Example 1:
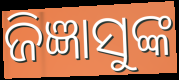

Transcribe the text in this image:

ଜିଜ୍ଞାସୁଙ୍କ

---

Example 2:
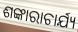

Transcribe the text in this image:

ଶଙ୍କାରାଚାର୍ଯ୍ୟ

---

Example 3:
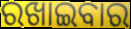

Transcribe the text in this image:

ରଖାଇବାର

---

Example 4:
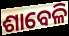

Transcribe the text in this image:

ଶାବେଳି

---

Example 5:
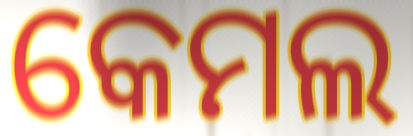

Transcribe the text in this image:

କେମଲ